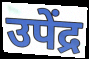
उपेंद्र